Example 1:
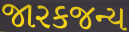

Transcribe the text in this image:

જારકજન્ય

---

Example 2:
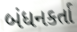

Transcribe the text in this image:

બંધનકર્તા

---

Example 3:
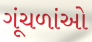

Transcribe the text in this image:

ગૂંચળાંઓ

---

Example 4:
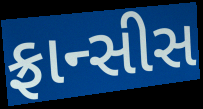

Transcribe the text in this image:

ફ્રાન્સીસ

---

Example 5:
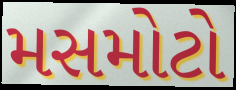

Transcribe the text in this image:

મસમોટો